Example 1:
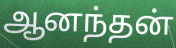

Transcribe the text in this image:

ஆனந்தன்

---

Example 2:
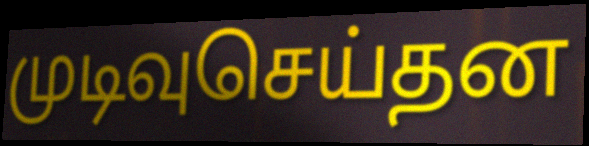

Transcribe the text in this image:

முடிவுசெய்தன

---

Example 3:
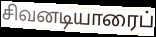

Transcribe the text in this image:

சிவனடியாரைப்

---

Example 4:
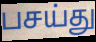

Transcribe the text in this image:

பசய்து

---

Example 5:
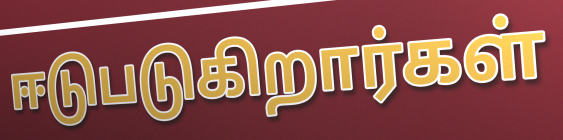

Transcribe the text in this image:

ஈடுபடுகிறார்கள்